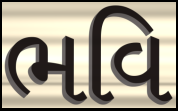
ભવિ